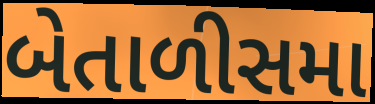
બેતાળીસમા